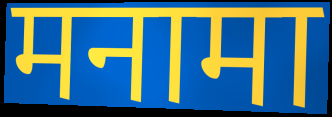
मनामा